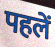
पहलें